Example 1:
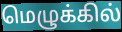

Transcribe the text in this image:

மெழுக்கில்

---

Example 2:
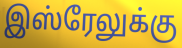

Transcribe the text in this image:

இஸ்ரேலுக்கு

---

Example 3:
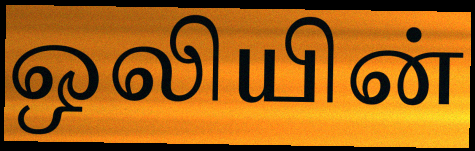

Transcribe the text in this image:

ஒலியின்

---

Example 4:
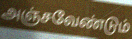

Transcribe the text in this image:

அஞ்சவேண்டும்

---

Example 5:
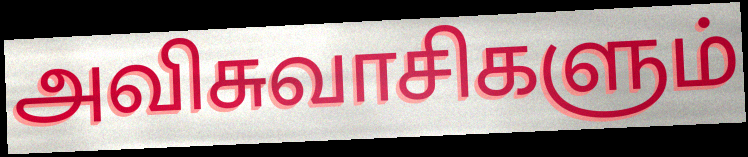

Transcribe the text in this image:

அவிசுவாசிகளும்